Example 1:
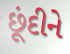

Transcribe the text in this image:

છૂંદીને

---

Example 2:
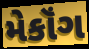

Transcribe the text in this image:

મેકૉંગ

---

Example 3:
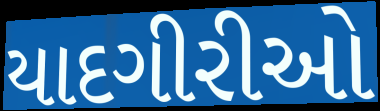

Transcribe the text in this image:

યાદગીરીઓ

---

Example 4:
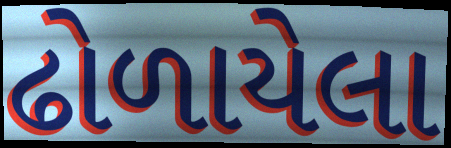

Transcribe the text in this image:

ઢોળાયેલા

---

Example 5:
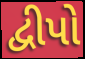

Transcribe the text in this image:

દ્વીપો